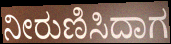
ನೀರುಣಿಸಿದಾಗ